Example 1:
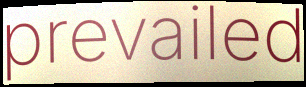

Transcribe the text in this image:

prevailed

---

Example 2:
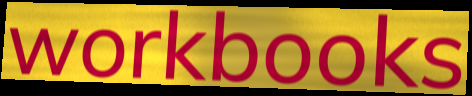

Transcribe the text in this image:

workbooks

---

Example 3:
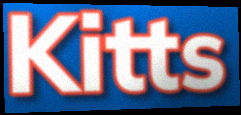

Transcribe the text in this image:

Kitts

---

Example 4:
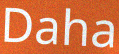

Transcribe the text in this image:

Daha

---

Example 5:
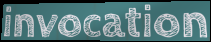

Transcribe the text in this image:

invocation